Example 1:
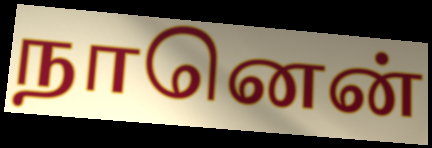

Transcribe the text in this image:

நானென்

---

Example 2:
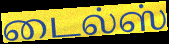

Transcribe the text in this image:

டைல்ஸ்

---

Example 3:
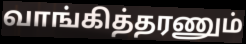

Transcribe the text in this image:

வாங்கித்தரணும்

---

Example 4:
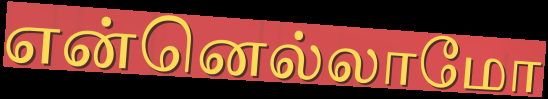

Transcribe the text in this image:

என்னெல்லாமோ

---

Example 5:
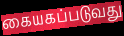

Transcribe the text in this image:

கையகப்படுவது